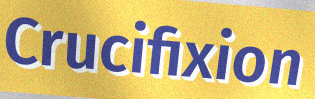
Crucifixion